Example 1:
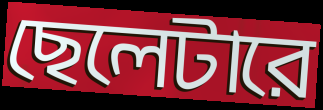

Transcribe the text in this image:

ছেলেটারে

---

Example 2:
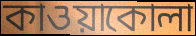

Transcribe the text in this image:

কাওয়াকোলা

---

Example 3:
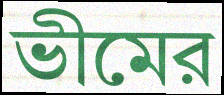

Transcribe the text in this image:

ভীমের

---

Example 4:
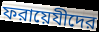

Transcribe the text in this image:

ফরায়েযীদের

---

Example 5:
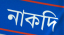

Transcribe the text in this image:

নাকদি